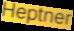
Heptner